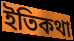
ইতিকথা